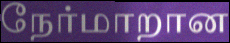
நேர்மாறான